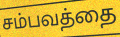
சம்பவத்தை